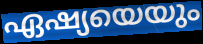
ഏഷ്യയെയും